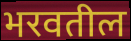
भरवतील